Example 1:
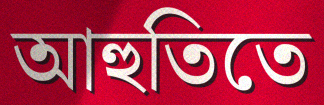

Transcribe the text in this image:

আহুতিতে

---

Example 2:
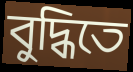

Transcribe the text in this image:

বুদ্ধিতে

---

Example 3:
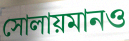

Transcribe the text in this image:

সোলায়মানও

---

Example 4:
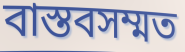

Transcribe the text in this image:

বাস্তবসম্মত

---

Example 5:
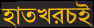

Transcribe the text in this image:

হাতখরচই